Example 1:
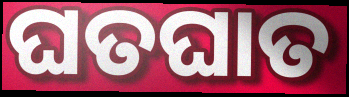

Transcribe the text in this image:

ଘତଘାତ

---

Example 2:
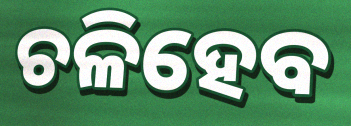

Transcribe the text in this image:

ଚଳିହେବ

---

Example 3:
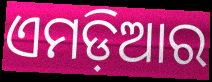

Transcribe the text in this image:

ଏମଡ଼ିଆର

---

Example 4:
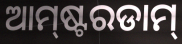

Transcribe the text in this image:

ଆମ୍‍ଷ୍ଟରଡାମ୍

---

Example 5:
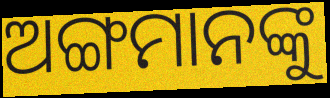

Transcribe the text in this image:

ଅଙ୍ଗମାନଙ୍କୁ